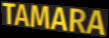
TAMARA